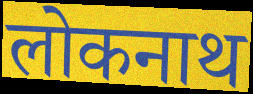
लोकनाथ